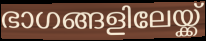
ഭാഗങ്ങളിലേയ്ക്ക്